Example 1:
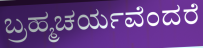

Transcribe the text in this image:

ಬ್ರಹ್ಮಚರ್ಯವೆಂದರೆ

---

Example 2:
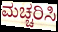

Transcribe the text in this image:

ಮಚ್ಚರಿಸಿ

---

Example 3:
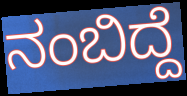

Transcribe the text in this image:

ನಂಬಿದ್ದೆ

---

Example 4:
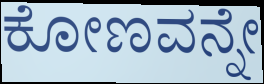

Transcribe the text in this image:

ಕೋಣವನ್ನೇ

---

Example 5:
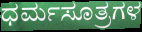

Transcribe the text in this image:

ಧರ್ಮಸೂತ್ರಗಳ